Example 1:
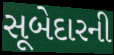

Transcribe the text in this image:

સૂબેદારની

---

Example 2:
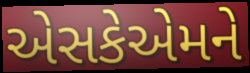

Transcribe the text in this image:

એસકેએમને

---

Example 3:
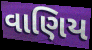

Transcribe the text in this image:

વાણિય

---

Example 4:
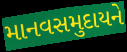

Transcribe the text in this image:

માનવસમુદાયને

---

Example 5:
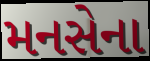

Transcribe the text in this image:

મનસેના